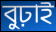
বুঢ়াই